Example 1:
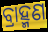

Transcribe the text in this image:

ବ୍ରାହ୍ମଣ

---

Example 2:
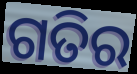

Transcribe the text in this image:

ଗତିର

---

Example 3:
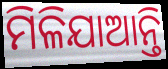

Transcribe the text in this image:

ମିଳିଯାଆନ୍ତି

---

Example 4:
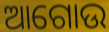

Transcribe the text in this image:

ଆଗୋଉ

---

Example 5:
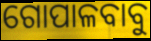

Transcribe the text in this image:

ଗୋପାଳବାବୁ